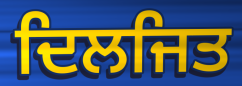
ਦਿਲਜਿਤ